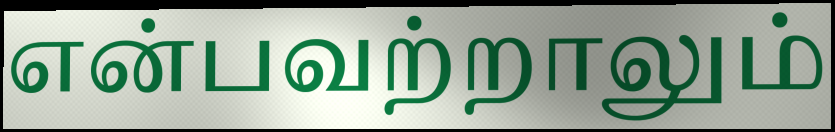
என்பவற்றாலும்